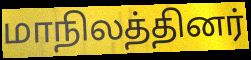
மாநிலத்தினர்